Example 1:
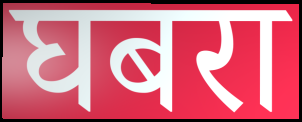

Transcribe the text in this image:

घबरा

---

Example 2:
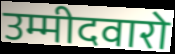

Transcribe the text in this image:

उम्मीदवारो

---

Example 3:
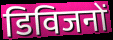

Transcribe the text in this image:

डिविजनों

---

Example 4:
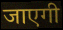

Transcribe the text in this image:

जाएगी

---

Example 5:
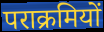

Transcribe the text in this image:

पराक्रमियों